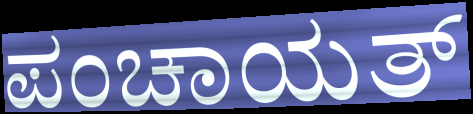
ಪಂಚಾಯತ್